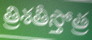
త్రిశతీస్తోత్ర